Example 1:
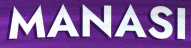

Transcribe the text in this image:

MANASI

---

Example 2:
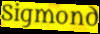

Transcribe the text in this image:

Sigmond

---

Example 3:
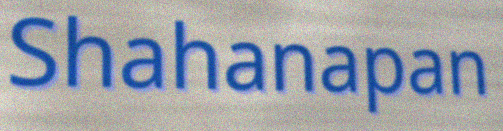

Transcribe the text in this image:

Shahanapan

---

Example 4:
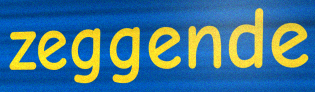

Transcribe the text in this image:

zeggende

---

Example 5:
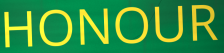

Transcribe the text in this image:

HONOUR